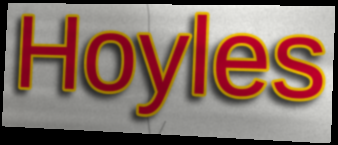
Hoyles